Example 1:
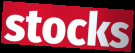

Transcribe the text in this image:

stocks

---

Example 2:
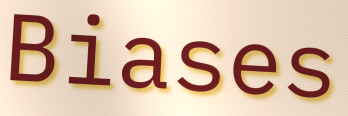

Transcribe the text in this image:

Biases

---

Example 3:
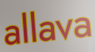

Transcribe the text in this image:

allava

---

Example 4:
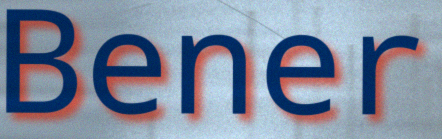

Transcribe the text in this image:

Bener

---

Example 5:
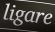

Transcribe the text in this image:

ligare